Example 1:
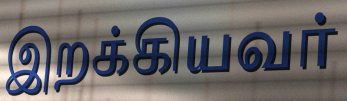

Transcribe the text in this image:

இறக்கியவர்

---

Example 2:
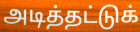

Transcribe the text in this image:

அடித்தட்டுக்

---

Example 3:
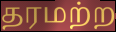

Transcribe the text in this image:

தரமற்ற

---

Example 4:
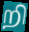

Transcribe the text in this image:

றி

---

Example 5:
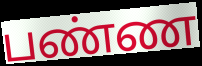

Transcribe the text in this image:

பண்ண